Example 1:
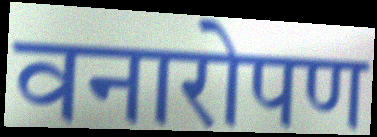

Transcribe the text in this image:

वनारोपण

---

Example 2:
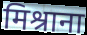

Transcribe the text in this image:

मिश्राना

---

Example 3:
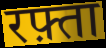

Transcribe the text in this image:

रफ़्ता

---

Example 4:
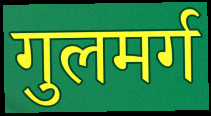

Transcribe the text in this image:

गुलमर्ग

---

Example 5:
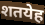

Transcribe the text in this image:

शतयेह